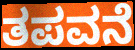
ತಪವನೆ